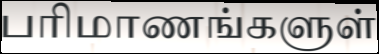
பரிமாணங்களுள்